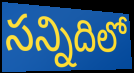
సన్నిదిలో